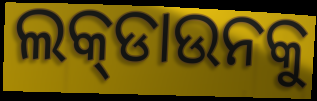
ଲକ୍‌ଡାଉନକୁ